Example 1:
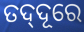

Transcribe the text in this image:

ତଦ୍‍ଦୂରେ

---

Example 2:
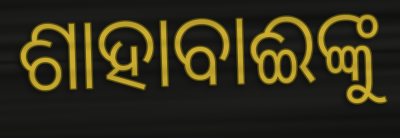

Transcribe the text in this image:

ଶାହାବାଈଙ୍କୁ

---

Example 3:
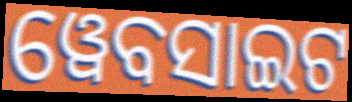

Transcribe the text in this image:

ୱେବସାଇଟ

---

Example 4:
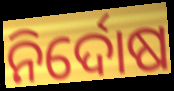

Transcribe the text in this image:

ନିର୍ଦୋଷ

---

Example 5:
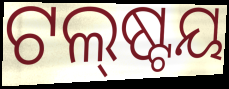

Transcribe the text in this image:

ଟଲ୍‌ଷ୍ଟୟ